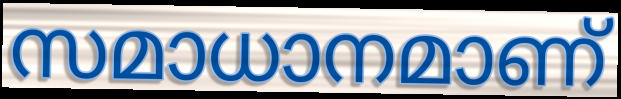
സമാധാനമാണ്